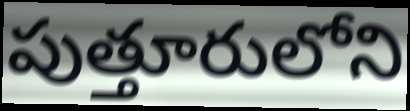
పుత్తూరులోని